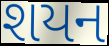
શયન